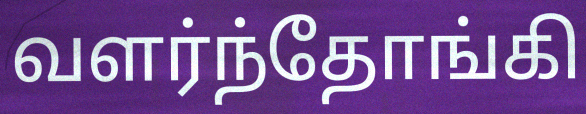
வளர்ந்தோங்கி